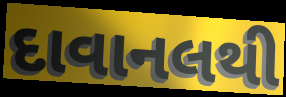
દાવાનલથી